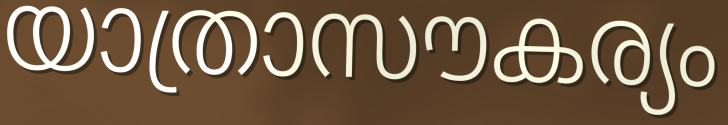
യാത്രാസൗകര്യം